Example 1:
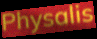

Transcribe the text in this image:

Physalis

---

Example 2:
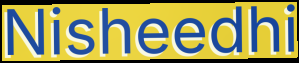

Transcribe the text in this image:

Nisheedhi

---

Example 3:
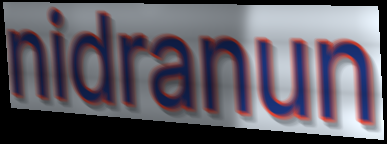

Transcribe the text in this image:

nidranun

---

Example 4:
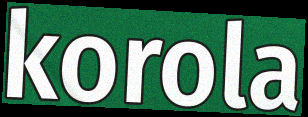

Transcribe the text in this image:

korola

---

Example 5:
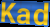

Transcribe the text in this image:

Kad